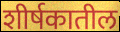
शीर्षकातील